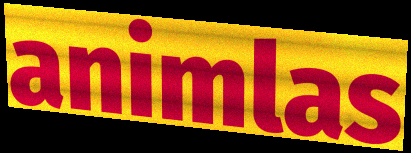
animlas